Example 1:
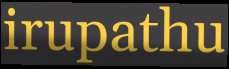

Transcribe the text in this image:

irupathu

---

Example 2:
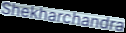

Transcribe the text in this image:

Shekharchandra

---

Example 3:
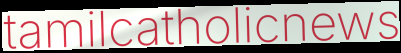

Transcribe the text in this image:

tamilcatholicnews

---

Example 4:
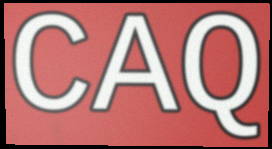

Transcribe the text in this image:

CAQ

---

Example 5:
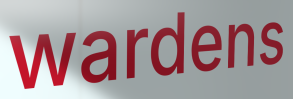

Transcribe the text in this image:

wardens